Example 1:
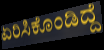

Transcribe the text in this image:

ಏರಿಸಿಕೊಂಡಿದ್ದೆ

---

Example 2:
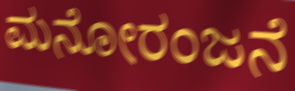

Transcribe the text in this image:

ಮನೋರಂಜನೆ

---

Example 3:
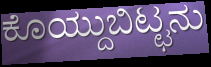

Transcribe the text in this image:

ಕೊಯ್ದುಬಿಟ್ಟನು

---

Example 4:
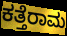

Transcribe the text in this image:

ಕತ್ತೆರಾಮ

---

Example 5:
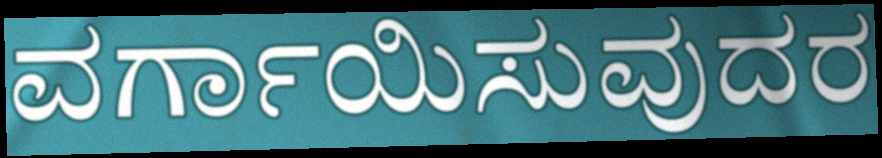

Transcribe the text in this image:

ವರ್ಗಾಯಿಸುವುದರ